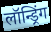
लॉन्ड्रिंग